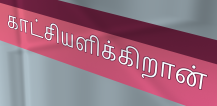
காட்சியளிக்கிறான்